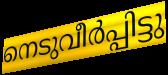
നെടുവീർപ്പിട്ടു